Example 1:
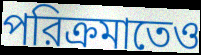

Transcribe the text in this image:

পরিক্রমাতেও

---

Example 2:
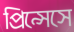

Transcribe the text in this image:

প্রিন্সেসে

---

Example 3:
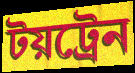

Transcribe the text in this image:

টয়ট্রেন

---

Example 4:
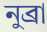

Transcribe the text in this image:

নুব্রা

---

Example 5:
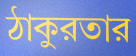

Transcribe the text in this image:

ঠাকুরতার